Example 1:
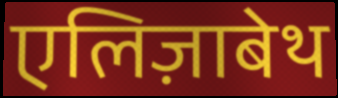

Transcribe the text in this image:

एलिज़ाबेथ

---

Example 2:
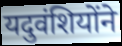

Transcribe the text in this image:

यदुवंशियोंने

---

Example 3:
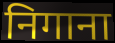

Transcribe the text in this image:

निगाना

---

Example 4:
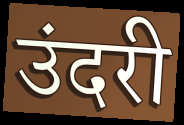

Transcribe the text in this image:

उंदरी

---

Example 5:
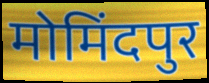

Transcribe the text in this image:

मोमिंदपुर